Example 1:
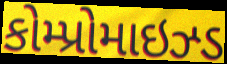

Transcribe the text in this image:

કોમ્પ્રોમાઇઝ્ડ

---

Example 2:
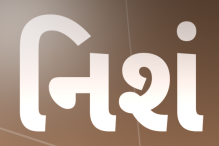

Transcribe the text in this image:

નિશં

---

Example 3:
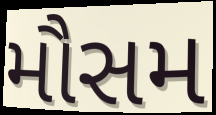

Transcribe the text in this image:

મૌસમ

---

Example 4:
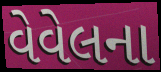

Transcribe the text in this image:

વેવેલના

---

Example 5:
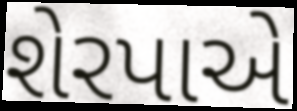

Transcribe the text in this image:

શેરપાએ